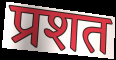
प्रशत